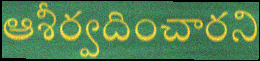
ఆశీర్వదించారని